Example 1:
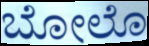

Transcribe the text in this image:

ಬೋಲೊ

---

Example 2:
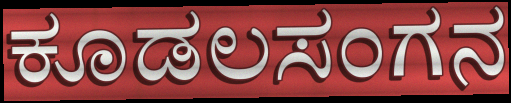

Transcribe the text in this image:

ಕೂಡಲಸಂಗನ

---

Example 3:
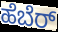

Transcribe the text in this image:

ಹೆಬೆರ್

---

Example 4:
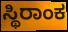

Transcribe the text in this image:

ಸ್ಥಿರಾಂಕ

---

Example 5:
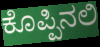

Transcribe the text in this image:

ಕೊಪ್ಪಿನಲಿ